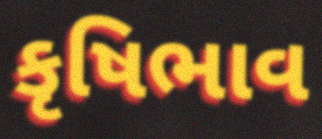
કૃષિભાવ